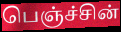
பெஞ்ச்சின்